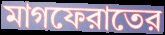
মাগফেরাতের